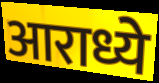
आराध्ये